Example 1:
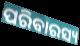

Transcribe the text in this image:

ପରିବାରସ୍ୟ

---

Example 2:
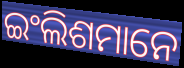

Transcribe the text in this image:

ଇଂଲିଶମାନେ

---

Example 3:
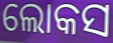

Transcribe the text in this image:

ଲୋକସ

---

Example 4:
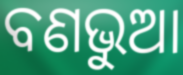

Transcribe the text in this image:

ବଣଭୁଆ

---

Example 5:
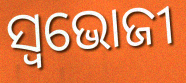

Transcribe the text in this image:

ସ୍ଵଭୋଜୀ